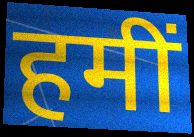
हमीं